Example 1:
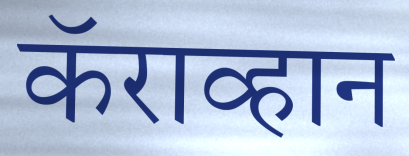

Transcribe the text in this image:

कॅराव्हान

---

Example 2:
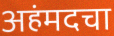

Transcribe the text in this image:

अहंमदचा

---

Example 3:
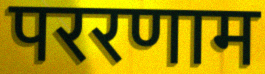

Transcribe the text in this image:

पररणाम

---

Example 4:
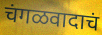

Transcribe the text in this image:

चंगळवादाचं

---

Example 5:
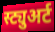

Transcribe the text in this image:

स्ट्युअर्ट